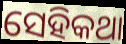
ସେହିକଥା